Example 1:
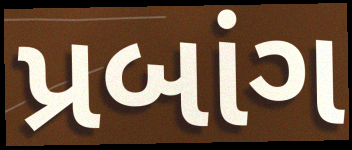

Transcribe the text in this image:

પ્રબાંગ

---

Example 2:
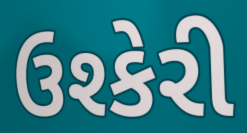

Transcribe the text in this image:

ઉશ્કેરી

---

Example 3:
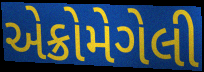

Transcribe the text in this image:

એક્રોમેગેલી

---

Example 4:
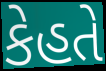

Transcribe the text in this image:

કેહતે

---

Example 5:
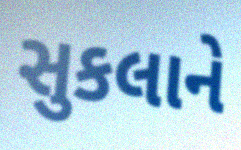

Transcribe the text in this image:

સુકલાને